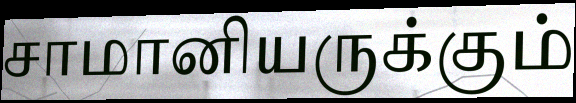
சாமானியருக்கும்